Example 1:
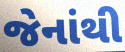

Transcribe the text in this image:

જેનાંથી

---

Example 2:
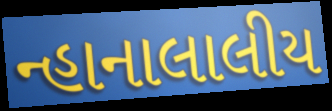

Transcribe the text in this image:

ન્હાનાલાલીય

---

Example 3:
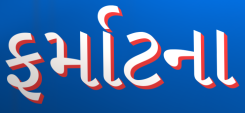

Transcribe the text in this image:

ફર્માટના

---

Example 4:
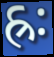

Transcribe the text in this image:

હ્રઃ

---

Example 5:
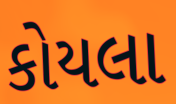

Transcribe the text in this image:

કોયલા